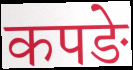
कपङे